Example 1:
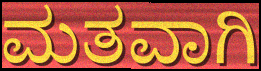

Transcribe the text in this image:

ಮತವಾಗಿ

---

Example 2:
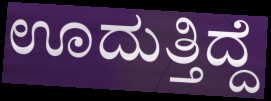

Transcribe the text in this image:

ಊದುತ್ತಿದ್ದೆ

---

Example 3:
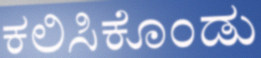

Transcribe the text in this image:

ಕಲಿಸಿಕೊಂಡು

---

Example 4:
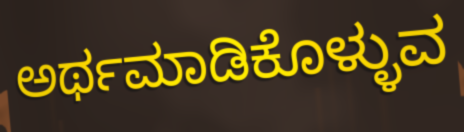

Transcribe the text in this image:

ಅರ್ಥಮಾಡಿಕೊಳ್ಳುವ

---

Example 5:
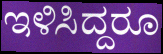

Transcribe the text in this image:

ಇಳಿಸಿದ್ದರೂ